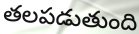
తలపడుతుంది